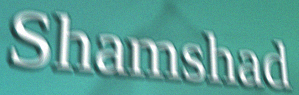
Shamshad